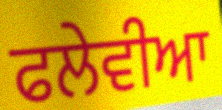
ਫਲੇਵੀਆ